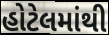
હોટેલમાંથી